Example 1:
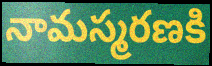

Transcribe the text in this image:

నామస్మరణకి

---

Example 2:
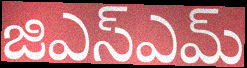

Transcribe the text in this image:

జిఎస్ఎమ్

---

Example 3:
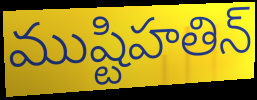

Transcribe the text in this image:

ముష్టిహతిన్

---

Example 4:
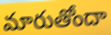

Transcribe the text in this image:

మారుతోందా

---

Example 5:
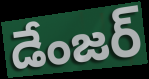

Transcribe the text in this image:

డేంజర్